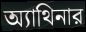
অ্যাথিনার